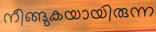
നീങ്ങുകയായിരുന്ന